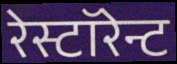
रेस्टॉरेन्ट